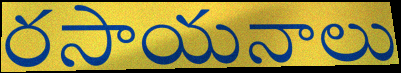
రసాయనాలు